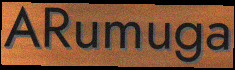
ARumuga